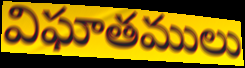
విఘాతములు